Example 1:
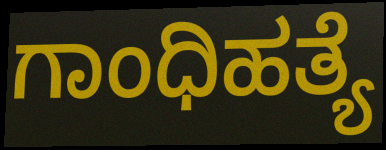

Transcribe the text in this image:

ಗಾಂಧಿಹತ್ಯೆ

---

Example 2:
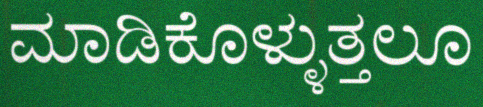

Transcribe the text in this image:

ಮಾಡಿಕೊಳ್ಳುತ್ತಲೂ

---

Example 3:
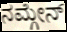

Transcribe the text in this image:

ನಮ್ಗೇನ್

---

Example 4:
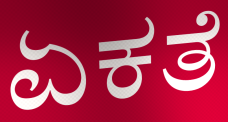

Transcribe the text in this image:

ಏಕತೆ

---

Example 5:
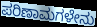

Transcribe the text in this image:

ಪರಿಣಾಮಗಳೇನು